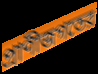
প্রাণীজগতের